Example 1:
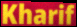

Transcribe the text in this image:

Kharif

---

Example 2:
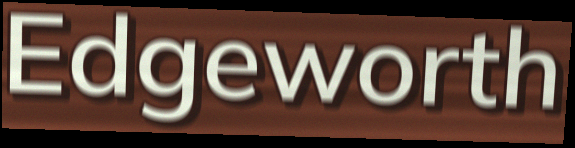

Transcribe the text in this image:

Edgeworth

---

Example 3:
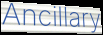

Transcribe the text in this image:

Ancillary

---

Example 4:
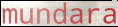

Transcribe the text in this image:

mundara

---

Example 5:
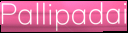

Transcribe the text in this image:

Pallipadai